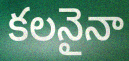
కలనైనా